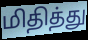
மிதித்து